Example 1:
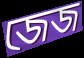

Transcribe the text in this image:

জেজ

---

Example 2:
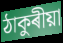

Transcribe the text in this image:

ঠাকুৰীয়া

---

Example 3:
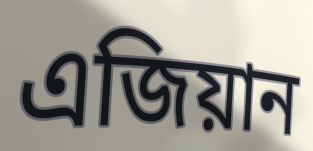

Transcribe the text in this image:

এজিয়ান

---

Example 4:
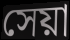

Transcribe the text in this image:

সেয়া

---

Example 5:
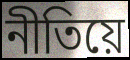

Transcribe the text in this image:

নীতিয়ে